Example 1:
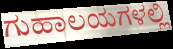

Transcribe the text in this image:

ಗುಹಾಲಯಗಳಲ್ಲಿ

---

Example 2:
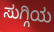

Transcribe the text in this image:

ಸುಗ್ಗಿಯ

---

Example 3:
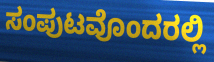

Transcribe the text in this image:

ಸಂಪುಟವೊಂದರಲ್ಲಿ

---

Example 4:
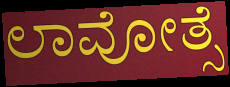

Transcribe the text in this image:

ಲಾವೋತ್ಸೆ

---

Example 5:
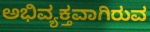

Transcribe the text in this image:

ಅಭಿವ್ಯಕ್ತವಾಗಿರುವ